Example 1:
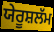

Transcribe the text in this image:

ਯੇਰੂਸ਼ਲੱਮ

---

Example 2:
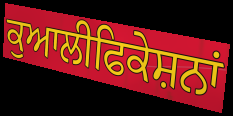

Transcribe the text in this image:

ਕੁਆਲੀਫਿਕੇਸ਼ਨਾਂ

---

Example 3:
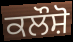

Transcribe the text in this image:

ਕਲੌਸ਼ੋ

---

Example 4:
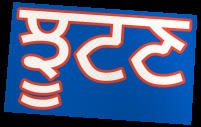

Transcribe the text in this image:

ਝੂਟਣ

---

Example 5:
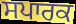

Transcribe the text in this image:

ਸਪਾਰਕ